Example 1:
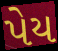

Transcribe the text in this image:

પેય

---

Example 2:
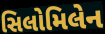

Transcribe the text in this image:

સિલોમિલેન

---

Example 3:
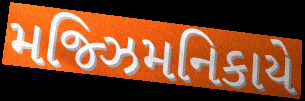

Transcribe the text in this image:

મજ્ઝિમનિકાયે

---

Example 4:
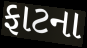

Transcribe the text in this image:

ફાટના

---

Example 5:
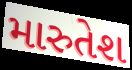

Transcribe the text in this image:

મારુતેશ